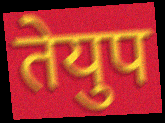
तेयुप